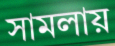
সামলায়